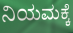
ನಿಯಮಕ್ಕೆ